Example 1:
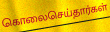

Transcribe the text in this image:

கொலைசெய்தார்கள்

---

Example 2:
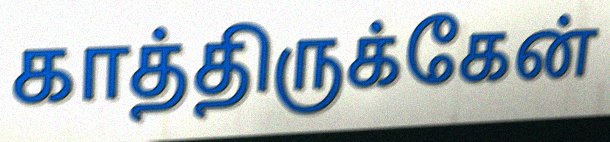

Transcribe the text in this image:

காத்திருக்கேன்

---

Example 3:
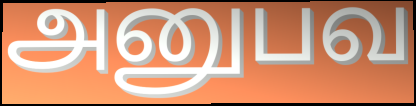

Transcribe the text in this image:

அனுபவ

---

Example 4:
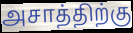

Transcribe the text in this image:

அசாத்திற்கு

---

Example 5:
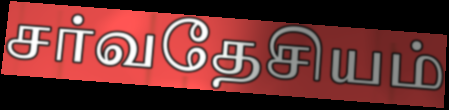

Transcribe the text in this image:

சர்வதேசியம்